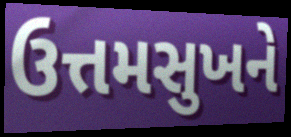
ઉત્તમસુખને